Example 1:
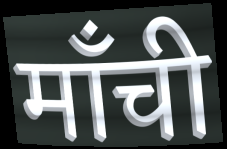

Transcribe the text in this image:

माँची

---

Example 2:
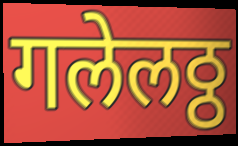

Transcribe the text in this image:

गलेलठ्ठ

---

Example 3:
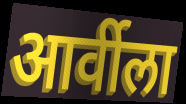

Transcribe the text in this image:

आर्वीला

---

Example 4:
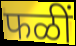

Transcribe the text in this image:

फळीं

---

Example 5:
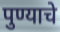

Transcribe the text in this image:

पुण्याचे